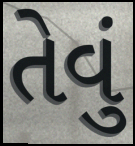
તેવું